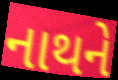
નાથને